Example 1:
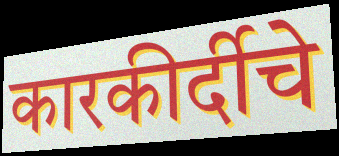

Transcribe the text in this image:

कारकीर्दीचे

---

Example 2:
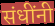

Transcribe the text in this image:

संधींनी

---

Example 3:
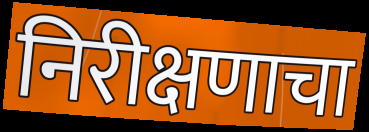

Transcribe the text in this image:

निरीक्षणाचा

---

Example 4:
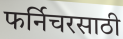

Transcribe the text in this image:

फर्निचरसाठी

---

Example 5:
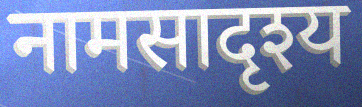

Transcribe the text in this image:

नामसादृश्य